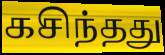
கசிந்தது